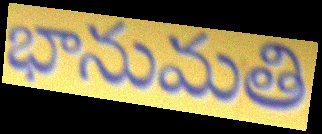
భానుమతి